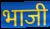
भाजी